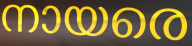
നായരെ